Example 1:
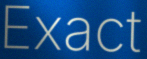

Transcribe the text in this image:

Exact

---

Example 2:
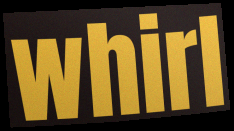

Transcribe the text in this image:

whirl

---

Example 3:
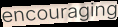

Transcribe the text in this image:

encouraging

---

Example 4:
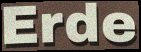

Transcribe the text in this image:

Erde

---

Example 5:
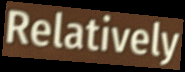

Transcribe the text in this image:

Relatively